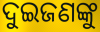
ଦୁଇଜଣଙ୍କୁ